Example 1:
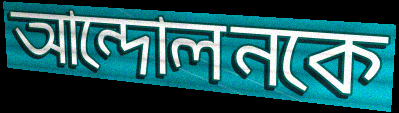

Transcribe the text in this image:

আন্দোলনকে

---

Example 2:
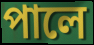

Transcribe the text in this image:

পালে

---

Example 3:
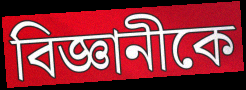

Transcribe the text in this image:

বিজ্ঞানীকে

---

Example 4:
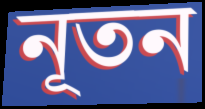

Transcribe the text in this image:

নূতন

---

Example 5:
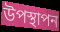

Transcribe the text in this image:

উপস্থাপন